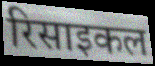
रिसाइकल